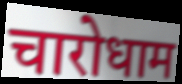
चारोधाम